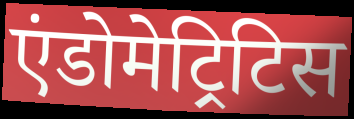
एंडोमेट्रिटिस